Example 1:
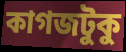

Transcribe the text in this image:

কাগজটুকু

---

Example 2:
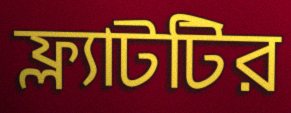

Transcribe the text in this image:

ফ্ল্যাটটির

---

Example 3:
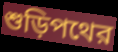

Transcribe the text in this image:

শুড়িপথের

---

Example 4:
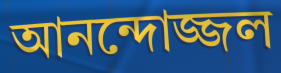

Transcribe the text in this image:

আনন্দোজ্জল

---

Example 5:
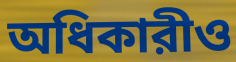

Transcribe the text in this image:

অধিকারীও